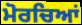
ਮੋਰਚਿਆਂ